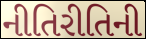
નીતિરીતિની